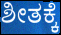
ಶೀತಕ್ಕೆ